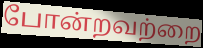
போன்றவற்றை